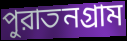
পুরাতনগ্রাম